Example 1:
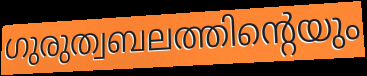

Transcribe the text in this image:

ഗുരുത്വബലത്തിന്റെയും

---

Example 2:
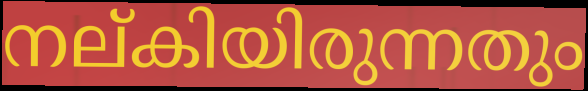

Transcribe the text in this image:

നല്കിയിരുന്നതും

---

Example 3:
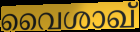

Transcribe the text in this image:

വൈശാഖ്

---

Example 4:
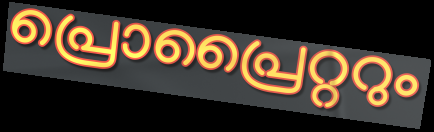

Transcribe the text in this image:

പ്രൊപ്രൈറ്ററും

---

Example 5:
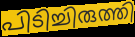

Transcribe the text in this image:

പിടിച്ചിരുത്തി